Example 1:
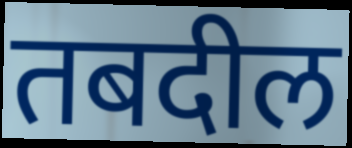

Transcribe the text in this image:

तबदील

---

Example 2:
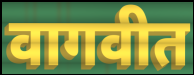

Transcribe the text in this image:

वागवीत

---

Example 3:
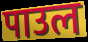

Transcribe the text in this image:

पाउल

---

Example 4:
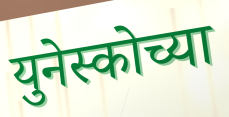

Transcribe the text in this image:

युनेस्कोच्या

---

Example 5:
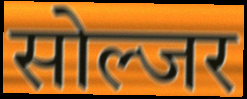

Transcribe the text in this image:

सोल्जर